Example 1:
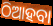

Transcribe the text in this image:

ଠିଆହବା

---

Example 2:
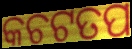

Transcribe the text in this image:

କଚଟତପ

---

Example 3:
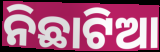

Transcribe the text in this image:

ନିଛାଟିଆ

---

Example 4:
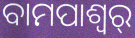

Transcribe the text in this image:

ବାମପାଶ୍ୱର୍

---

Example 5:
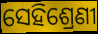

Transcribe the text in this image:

ସେହିଶ୍ରେଣୀ